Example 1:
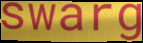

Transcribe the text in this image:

swarg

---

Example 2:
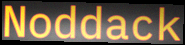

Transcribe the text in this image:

Noddack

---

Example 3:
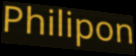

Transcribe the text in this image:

Philipon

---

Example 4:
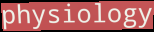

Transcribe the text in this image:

physiology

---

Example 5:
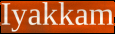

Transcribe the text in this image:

Iyakkam